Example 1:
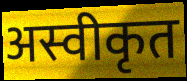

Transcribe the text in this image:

अस्वीकृत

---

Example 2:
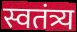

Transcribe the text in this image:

स्वतंत्र्य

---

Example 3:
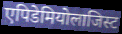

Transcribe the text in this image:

एपिडेमियोलाजिस्ट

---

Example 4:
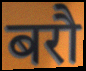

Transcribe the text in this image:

बरौ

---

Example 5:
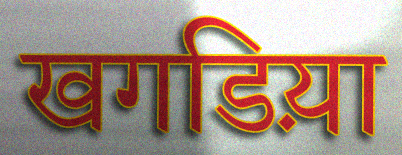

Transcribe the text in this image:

खगडिय़ा